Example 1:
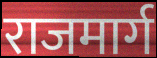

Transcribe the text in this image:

राजमार्ग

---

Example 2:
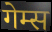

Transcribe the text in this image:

गेम्स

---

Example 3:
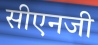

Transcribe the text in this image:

सीएनजी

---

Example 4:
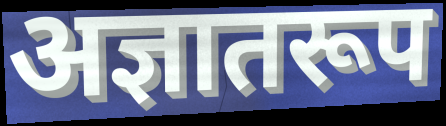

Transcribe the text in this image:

अज्ञातरूप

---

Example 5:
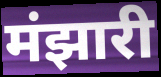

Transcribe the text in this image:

मंझारी